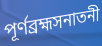
পূর্ণব্রহ্মসনাতনী